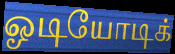
ஓடியோடிக்